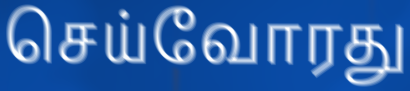
செய்வோரது